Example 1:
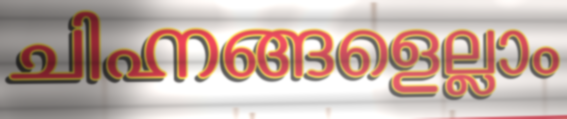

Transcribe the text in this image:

ചിഹ്നങ്ങളെല്ലാം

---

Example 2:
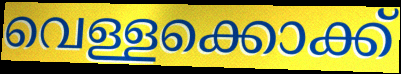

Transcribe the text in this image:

വെള്ളക്കൊക്ക്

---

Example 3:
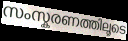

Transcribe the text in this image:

സംസ്കരണത്തിലൂടെ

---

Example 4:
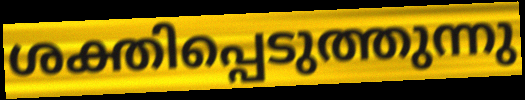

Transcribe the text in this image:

ശക്തിപ്പെടുത്തുന്നു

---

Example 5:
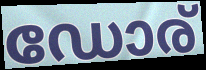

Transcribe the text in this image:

ഡോര്